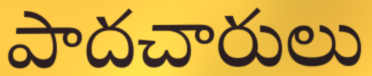
పాదచారులు